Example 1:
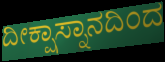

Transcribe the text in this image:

ದೀಕ್ಷಾಸ್ನಾನದಿಂದ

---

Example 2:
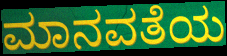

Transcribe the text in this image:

ಮಾನವತೆಯ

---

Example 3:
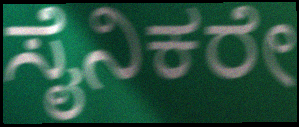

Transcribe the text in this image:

ಸೈನಿಕರೇ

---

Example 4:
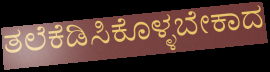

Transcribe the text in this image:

ತಲೆಕೆಡಿಸಿಕೊಳ್ಳಬೇಕಾದ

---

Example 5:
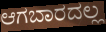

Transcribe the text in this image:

ಆಗಬಾರದಲ್ಲ